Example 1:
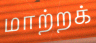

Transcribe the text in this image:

மாற்றக்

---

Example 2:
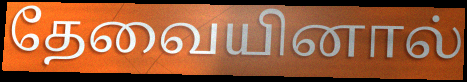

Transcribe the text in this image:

தேவையினால்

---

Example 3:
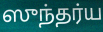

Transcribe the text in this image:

ஸுந்தர்ய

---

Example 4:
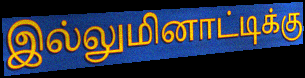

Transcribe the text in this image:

இல்லுமினாட்டிக்கு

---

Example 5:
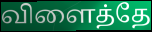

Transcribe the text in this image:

விளைத்தே